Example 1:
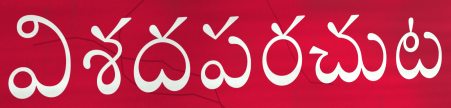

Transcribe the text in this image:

విశదపరచుట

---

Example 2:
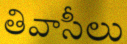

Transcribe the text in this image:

తివాసీలు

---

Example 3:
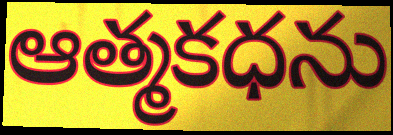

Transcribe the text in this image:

ఆత్మకధను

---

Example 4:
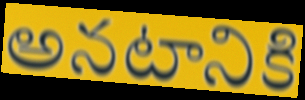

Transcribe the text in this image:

అనటానికి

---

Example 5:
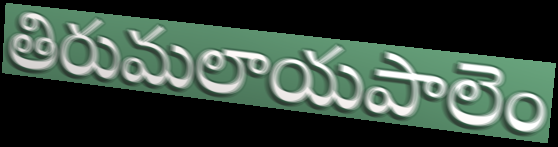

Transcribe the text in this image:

తిరుమలాయపాలెం